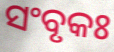
ସଂବୃକଃ